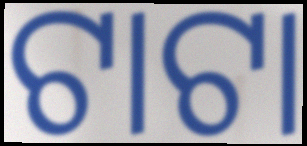
ଟାଟା